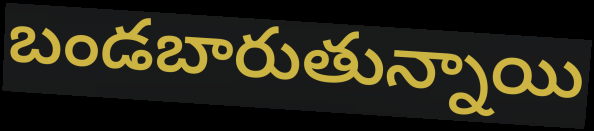
బండబారుతున్నాయి